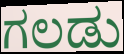
ಗಲಡು